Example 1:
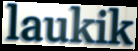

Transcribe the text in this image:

laukik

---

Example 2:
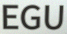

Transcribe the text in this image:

EGU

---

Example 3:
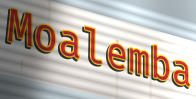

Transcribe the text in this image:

Moalemba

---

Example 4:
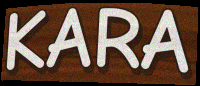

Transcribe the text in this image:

KARA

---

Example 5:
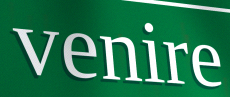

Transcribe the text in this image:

venire